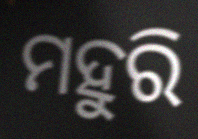
ମହୁରି